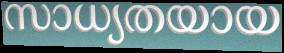
സാധ്യതയായ